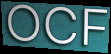
OCF